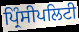
ਪ੍ਰਿੰਸੀਪਲਿਟੀ